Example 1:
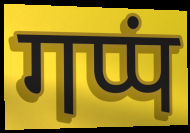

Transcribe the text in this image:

गप्पं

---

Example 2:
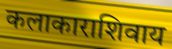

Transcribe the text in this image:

कलाकाराशिवाय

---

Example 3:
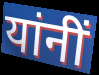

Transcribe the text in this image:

यांनीं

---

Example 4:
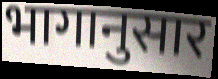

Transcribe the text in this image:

भागानुसार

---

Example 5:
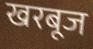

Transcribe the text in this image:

खरबूज